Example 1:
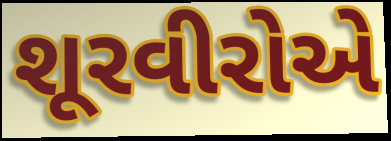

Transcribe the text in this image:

શૂરવીરોએ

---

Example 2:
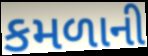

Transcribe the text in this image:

કમળાની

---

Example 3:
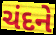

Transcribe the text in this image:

ચંદને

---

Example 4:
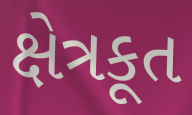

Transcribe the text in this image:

ક્ષેત્રકૂત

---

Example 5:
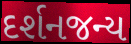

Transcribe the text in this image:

દર્શનજન્ય